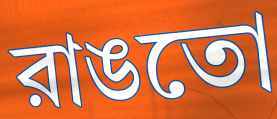
রাঙতো